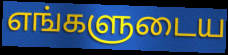
எங்களுடைய